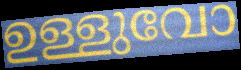
ഉള്ളുവോ